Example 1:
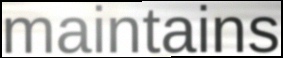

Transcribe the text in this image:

maintains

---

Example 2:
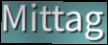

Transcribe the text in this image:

Mittag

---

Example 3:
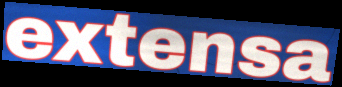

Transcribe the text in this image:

extensa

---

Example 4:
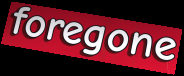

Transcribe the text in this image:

foregone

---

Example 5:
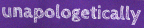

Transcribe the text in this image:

unapologetically